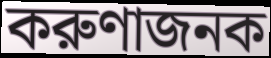
করুণাজনক